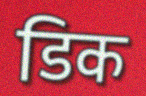
डिक